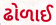
ઢોળાઈ